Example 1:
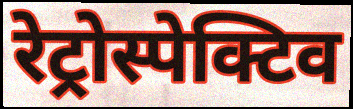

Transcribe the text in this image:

रेट्रोस्पेक्टिव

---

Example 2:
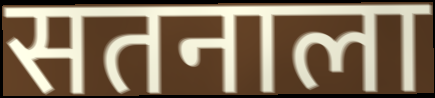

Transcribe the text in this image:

सतनाला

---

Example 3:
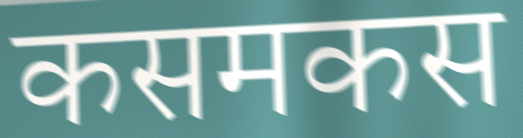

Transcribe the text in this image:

कसमकस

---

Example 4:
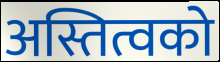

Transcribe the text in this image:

अस्तित्वको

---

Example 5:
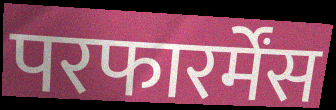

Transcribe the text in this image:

परफारर्मेंस